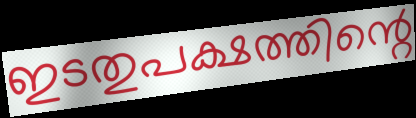
ഇടതുപക്ഷത്തിന്റെ